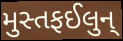
મુસ્તફઈલુન્